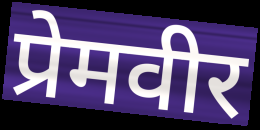
प्रेमवीर